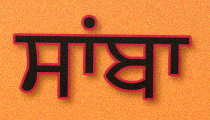
ਸਾਂਬਾ